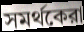
সমর্থকেরা